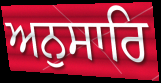
ਅਨੁਸਾਰਿ